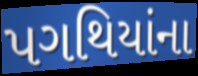
પગથિયાંના